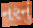
નરનું